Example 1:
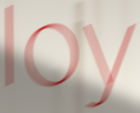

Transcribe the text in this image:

loy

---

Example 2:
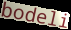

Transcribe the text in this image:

bodeli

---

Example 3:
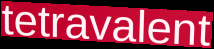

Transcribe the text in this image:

tetravalent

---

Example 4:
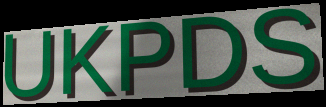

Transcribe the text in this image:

UKPDS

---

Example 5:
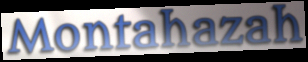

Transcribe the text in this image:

Montahazah